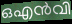
ഒഎൻവി